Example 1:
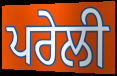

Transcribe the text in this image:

ਪਰੇਲੀ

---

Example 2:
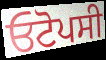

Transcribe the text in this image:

ਓਟੋਪਸੀ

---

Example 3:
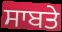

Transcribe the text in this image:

ਸਾਬਤੇ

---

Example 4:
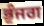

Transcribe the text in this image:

ਭੁੰਜਗ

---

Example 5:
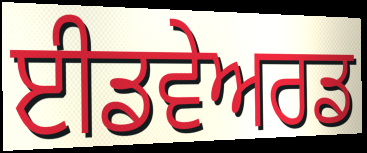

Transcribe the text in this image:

ਈਡਵੇਅਰਡ